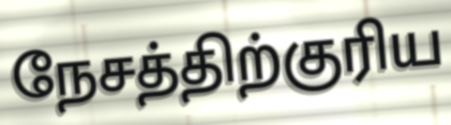
நேசத்திற்குரிய